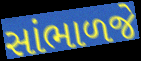
સાંભાળજે